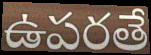
ఉపరతే